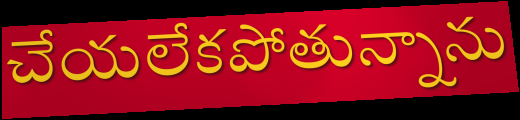
చేయలేకపోతున్నాను